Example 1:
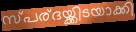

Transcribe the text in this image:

സ്പര്ദയ്ക്കിടയാക്കി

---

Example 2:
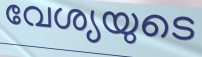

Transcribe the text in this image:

വേശ്യയുടെ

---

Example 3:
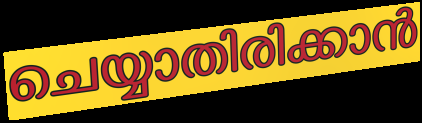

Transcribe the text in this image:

ചെയ്യാതിരിക്കാൻ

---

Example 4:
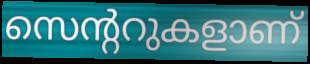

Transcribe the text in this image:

സെന്ററുകളാണ്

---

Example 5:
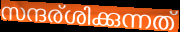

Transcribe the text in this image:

സന്ദര്ശിക്കുന്നത്